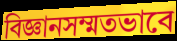
বিজ্ঞানসম্মতভাবে